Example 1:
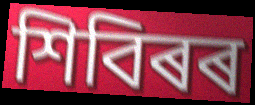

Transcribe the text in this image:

শিবিৰৰ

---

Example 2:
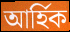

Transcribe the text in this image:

আৰ্হিক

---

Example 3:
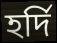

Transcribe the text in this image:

হৰ্দি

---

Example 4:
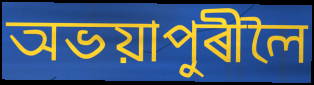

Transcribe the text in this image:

অভয়াপুৰীলৈ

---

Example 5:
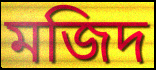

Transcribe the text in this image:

মজিদ